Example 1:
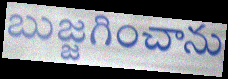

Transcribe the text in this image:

బుజ్జగించాను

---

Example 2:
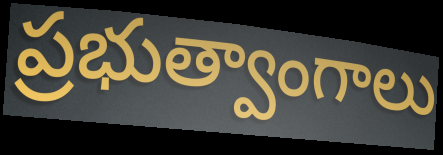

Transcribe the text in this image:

ప్రభుత్వాంగాలు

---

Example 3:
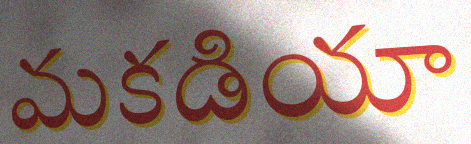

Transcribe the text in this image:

మకడియా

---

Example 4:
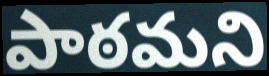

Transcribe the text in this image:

పాఠమని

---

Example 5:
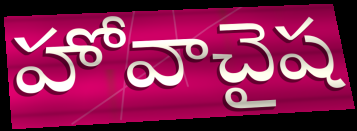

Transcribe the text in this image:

హోవాచైష